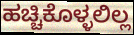
ಹಚ್ಚಿಕೊಳ್ಳಲಿಲ್ಲ